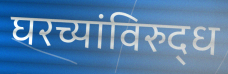
घरच्यांविरुद्ध